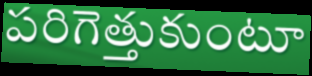
పరిగెత్తుకుంటూ